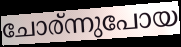
ചോര്ന്നുപോയ